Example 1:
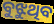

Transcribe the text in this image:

ବୁଝୁଥିବ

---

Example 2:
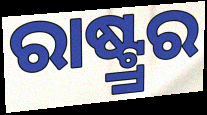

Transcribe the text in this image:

ରାଷ୍ଟ୍ର୍ରର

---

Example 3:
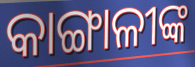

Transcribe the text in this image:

କାଙ୍ଗାଳୀଙ୍କ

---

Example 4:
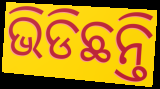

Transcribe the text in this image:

ଭିଡିଛନ୍ତି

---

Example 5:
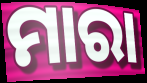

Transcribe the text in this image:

ମାରା